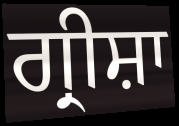
ਗ੍ਰੀਸ਼ਾ